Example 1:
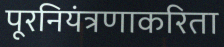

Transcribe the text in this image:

पूरनियंत्रणाकरिता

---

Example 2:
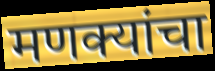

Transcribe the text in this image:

मणक्यांचा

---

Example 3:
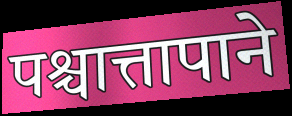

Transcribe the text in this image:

पश्चात्तापाने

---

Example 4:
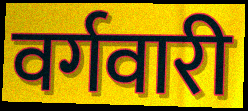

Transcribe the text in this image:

वर्गवारी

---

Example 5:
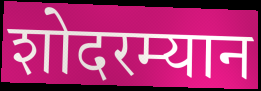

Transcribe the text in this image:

शोदरम्यान